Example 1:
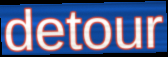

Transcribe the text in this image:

detour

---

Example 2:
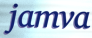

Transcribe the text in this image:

jamva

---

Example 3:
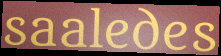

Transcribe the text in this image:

saaledes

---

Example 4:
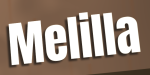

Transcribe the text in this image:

Melilla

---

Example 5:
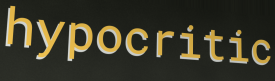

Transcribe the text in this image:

hypocritic